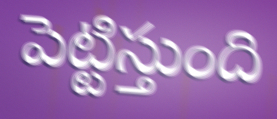
పెట్టిస్తుంది